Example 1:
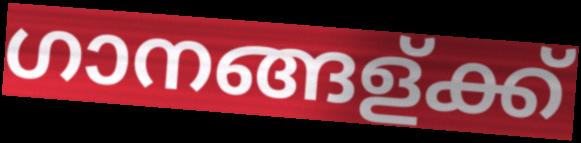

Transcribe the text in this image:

ഗാനങ്ങള്ക്ക്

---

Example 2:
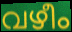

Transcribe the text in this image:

വഴീം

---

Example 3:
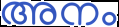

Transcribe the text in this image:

അനം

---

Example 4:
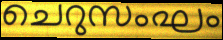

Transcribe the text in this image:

ചെറുസംഘം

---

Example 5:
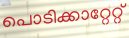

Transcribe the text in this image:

പൊടിക്കാറ്റേറ്റ്